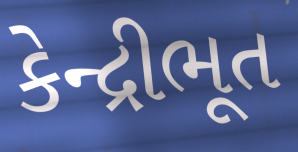
કેન્દ્રીભૂત